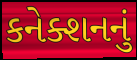
કનેક્શનનું